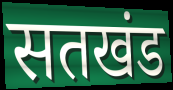
सतखंड